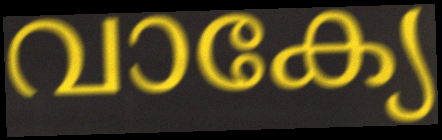
വാക്യേ